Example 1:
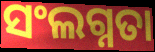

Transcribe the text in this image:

ସଂଲଗ୍ନତା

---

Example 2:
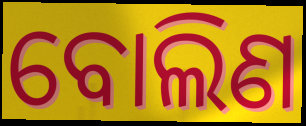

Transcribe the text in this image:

ବୋଲିଣ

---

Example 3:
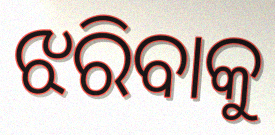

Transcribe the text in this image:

ଝରିବାକୁ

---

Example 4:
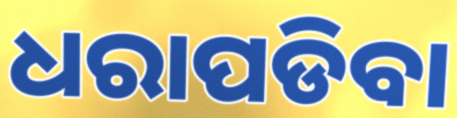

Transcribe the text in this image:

ଧରାପଡିବା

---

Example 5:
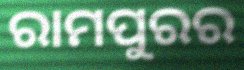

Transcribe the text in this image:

ରାମପୁରର